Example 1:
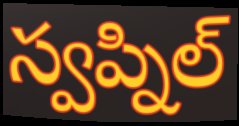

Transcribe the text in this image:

స్వప్నిల్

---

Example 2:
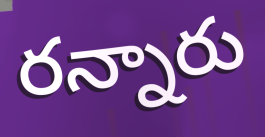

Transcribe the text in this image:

రన్నారు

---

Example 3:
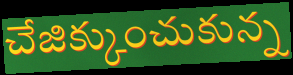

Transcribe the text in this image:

చేజిక్కుంచుకున్న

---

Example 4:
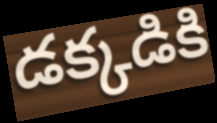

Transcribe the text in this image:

డక్కడికి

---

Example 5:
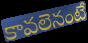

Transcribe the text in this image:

కావలెనంటే